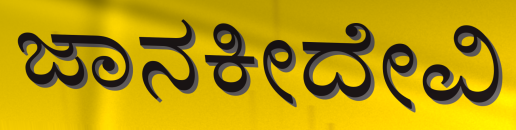
ಜಾನಕೀದೇವಿ